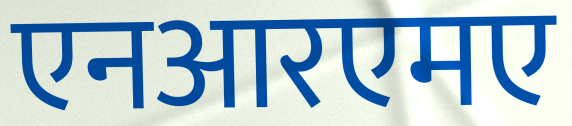
एनआरएमए